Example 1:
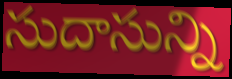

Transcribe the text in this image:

సుదాసున్ని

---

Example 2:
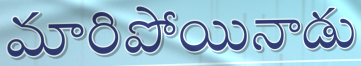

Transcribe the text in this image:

మారిపోయినాడు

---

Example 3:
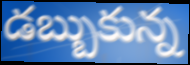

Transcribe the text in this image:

డబ్బుకున్న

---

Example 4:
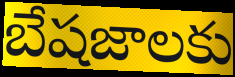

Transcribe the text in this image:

బేషజాలకు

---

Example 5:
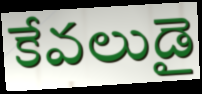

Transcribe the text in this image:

కేవలుడై